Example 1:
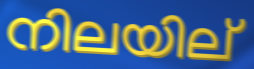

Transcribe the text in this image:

നിലയില്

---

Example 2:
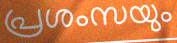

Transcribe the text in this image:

പ്രശംസയും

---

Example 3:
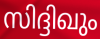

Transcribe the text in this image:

സിദ്ദിഖും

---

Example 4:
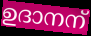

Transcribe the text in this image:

ഉദാനന്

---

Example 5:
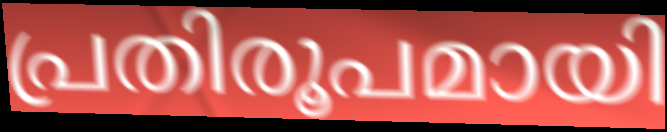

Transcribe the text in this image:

പ്രതിരൂപമായി